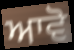
ਆਵੋ